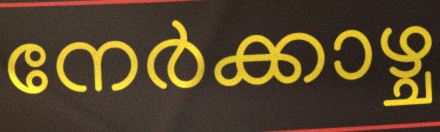
നേർക്കാഴ്ച